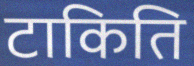
टाकिति